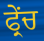
ਫ੍ਰੇਂਚ